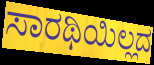
ಸಾರಥಿಯಿಲ್ಲದ